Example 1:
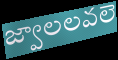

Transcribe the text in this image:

జ్వాలలవలె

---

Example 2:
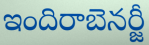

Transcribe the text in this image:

ఇందిరాబెనర్జీ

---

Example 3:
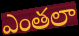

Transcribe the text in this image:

ఎంతలా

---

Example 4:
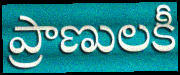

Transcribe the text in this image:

ప్రాణులకీ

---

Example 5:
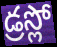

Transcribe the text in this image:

డ్రస్లో